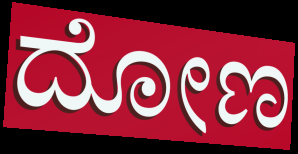
ದೋಣ